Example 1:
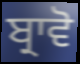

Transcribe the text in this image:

ਬ੍ਰਾਵੋ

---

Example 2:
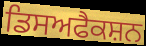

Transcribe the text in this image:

ਡਿਸਅਫੈਕਸ਼ਨ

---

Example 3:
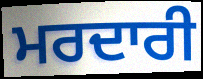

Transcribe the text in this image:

ਮਰਦਾਰੀ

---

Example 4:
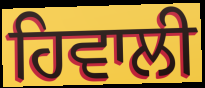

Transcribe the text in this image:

ਹਿਵਾਲੀ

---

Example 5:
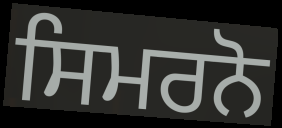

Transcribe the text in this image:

ਸਿਮਰਨੋ